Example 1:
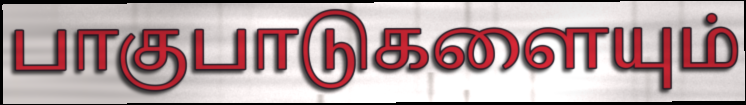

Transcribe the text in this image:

பாகுபாடுகளையும்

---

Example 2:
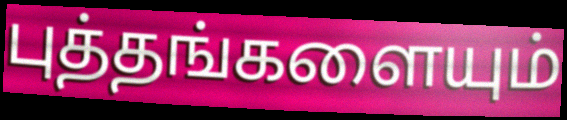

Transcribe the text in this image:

புத்தங்களையும்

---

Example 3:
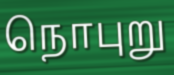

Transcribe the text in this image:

நொபுறு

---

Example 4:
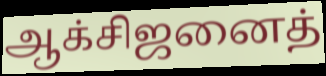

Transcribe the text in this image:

ஆக்சிஜனைத்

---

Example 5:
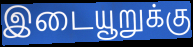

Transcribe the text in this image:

இடையூறுக்கு